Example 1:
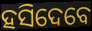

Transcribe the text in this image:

ହସିଦେବେ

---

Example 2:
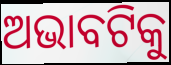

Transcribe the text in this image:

ଅଭାବଟିକୁ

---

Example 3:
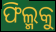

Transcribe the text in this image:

ଫିଲ୍ମକୁ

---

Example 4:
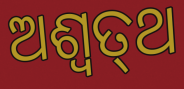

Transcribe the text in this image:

ଅଶ୍ଵତ୍‌ଥ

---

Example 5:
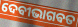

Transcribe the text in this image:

ଦେଵୀଭାଗଵତ